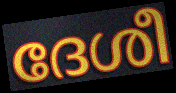
ദേശീ